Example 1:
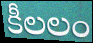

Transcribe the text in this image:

కీలలం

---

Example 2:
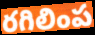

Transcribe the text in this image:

రగిలింప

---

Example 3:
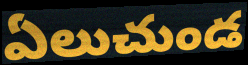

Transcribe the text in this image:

ఏలుచుండ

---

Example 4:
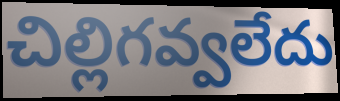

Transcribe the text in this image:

చిల్లిగవ్వలేదు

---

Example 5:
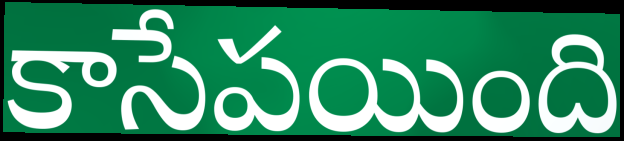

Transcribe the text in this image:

కాసేపయింది